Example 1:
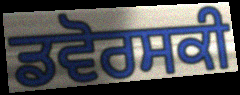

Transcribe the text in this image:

ਡਵੋਰਸਕੀ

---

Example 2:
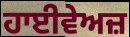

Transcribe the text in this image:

ਹਾਈਵੇਅਜ਼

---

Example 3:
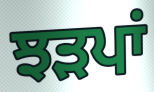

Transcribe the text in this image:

ਝੜਪਾਂ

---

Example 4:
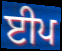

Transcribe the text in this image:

ਈਪ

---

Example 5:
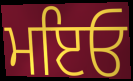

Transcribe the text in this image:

ਮਇਓ